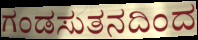
ಗಂಡಸುತನದಿಂದ